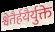
श्वेतैर्हयैर्युक्ते